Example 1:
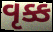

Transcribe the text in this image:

વૃક્ક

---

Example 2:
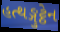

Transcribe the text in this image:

હત્થઙ્ગુટ્ઠેન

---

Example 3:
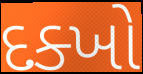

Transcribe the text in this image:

દક્ખો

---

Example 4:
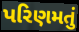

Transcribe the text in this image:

પરિણમતું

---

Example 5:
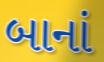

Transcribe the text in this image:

બાનાં